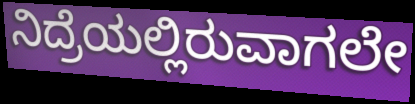
ನಿದ್ರೆಯಲ್ಲಿರುವಾಗಲೇ